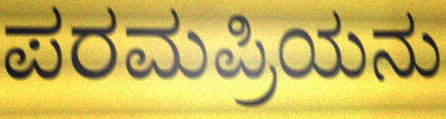
ಪರಮಪ್ರಿಯನು